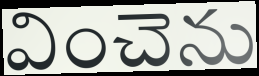
వించెను